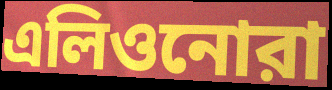
এলিওনোরা